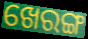
ଖେରଙ୍ଗ